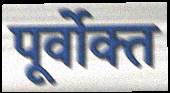
पूर्वोक्त